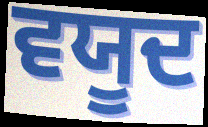
ਵਯੂਦ